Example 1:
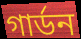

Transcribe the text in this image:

গার্ডন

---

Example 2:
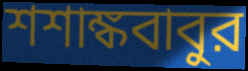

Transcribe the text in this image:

শশাঙ্কবাবুর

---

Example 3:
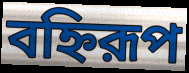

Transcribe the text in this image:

বহ্নিরূপ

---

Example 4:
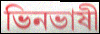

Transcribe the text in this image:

ভিনভাষী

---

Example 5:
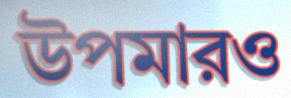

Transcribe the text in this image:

উপমারও